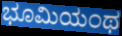
ಭೂಮಿಯಂಥ